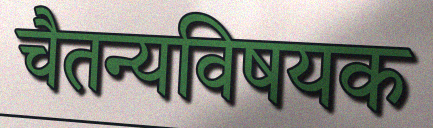
चैतन्यविषयक